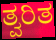
ತ್ವರಿತ